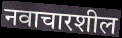
नवाचारशील